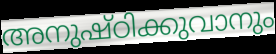
അനുഷ്ഠിക്കുവാനും